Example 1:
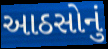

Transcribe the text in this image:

આઠસોનું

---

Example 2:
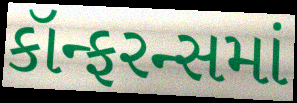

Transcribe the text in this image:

કૉન્ફરન્સમાં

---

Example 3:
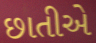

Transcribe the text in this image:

છાતીએ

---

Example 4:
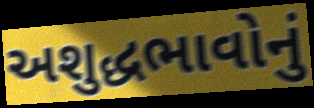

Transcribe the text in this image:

અશુદ્ધભાવોનું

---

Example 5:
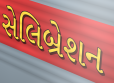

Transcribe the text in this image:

સેલિબ્રેશન